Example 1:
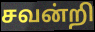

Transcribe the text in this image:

சவன்றி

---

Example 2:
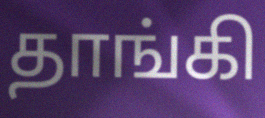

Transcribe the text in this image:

தாங்கி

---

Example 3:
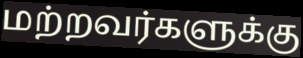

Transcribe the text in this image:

மற்றவர்களுக்கு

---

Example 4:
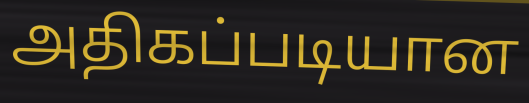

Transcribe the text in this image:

அதிகப்படியான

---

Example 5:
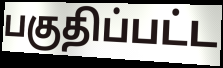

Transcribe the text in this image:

பகுதிப்பட்ட